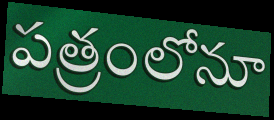
పత్రంలోనూ